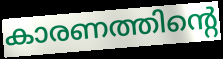
കാരണത്തിന്റെ